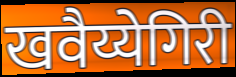
खवैय्येगिरी